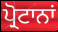
ਪ੍ਰੋਟਾਨਾਂ